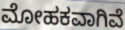
ಮೋಹಕವಾಗಿವೆ